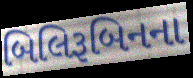
બિલિરૂબિનના